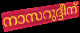
നാസറുദ്ദീന്